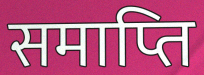
समाप्ति